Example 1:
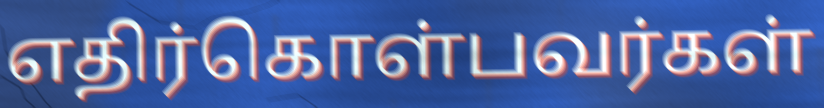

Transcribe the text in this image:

எதிர்கொள்பவர்கள்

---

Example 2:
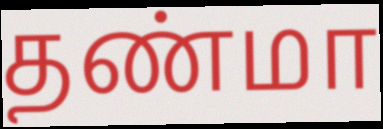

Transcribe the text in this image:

தண்மா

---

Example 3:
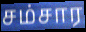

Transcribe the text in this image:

சம்சார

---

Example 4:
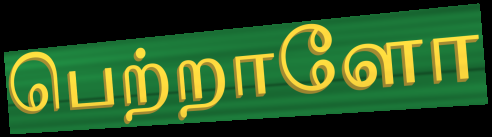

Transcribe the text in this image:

பெற்றாளோ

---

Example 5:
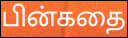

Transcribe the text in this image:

பின்கதை